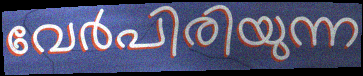
വേർപിരിയുന്ന